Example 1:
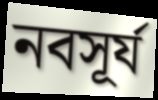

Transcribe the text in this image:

নবসূর্য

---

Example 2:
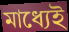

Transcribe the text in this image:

মাধ্যেই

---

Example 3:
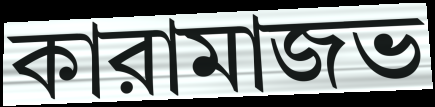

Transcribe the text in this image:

কারামাজভ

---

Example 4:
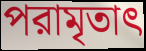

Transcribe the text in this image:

পরামৃতাৎ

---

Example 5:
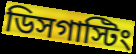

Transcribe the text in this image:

ডিসগাস্টিং